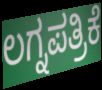
ಲಗ್ನಪತ್ರಿಕೆ